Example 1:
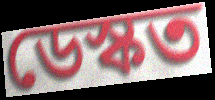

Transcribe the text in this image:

ডেস্কত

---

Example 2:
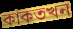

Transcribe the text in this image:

কাকতখন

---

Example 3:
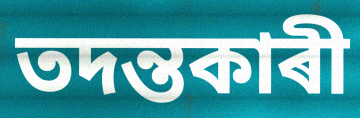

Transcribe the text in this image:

তদন্তকাৰী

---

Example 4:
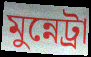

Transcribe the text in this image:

মুন্নেট্ৰা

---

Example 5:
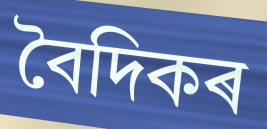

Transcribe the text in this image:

বৈদিকৰ